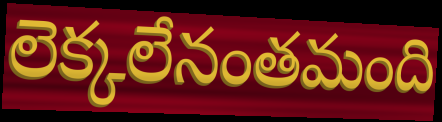
లెక్కలేనంతమంది